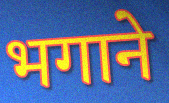
भगाने